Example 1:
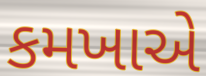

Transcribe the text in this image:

કમખાએ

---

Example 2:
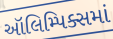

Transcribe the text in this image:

ઑલિમ્પિક્સમાં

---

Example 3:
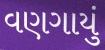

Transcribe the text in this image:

વણગાયું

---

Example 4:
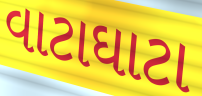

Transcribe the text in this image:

વાટાઘાટા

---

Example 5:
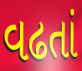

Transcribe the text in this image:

વઢતાં